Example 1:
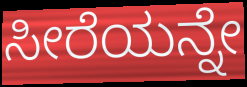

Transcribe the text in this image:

ಸೀರೆಯನ್ನೇ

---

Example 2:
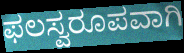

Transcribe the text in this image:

ಫಲಸ್ವರೂಪವಾಗಿ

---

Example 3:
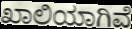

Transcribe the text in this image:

ಖಾಲಿಯಾಗಿವೆ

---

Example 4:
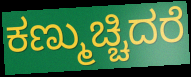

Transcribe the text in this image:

ಕಣ್ಮುಚ್ಚಿದರೆ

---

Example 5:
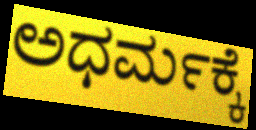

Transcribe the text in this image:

ಅಧರ್ಮಕ್ಕೆ